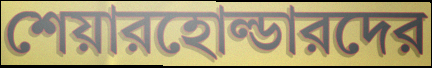
শেয়ারহোল্ডারদের